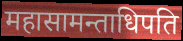
महासामन्ताधिपति